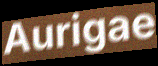
Aurigae